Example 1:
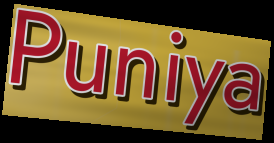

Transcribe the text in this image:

Puniya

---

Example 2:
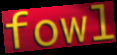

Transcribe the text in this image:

fowl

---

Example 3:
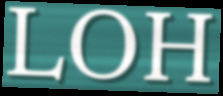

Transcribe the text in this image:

LOH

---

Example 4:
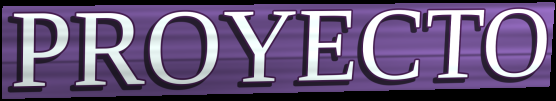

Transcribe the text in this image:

PROYECTO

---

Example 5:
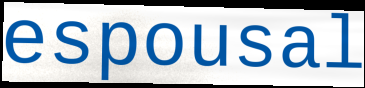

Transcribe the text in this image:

espousal